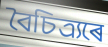
বৈচিত্ৰ্যৰে